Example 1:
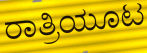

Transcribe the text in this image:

ರಾತ್ರಿಯೂಟ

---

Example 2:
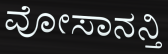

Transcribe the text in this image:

ವೋಸಾನನ್ತಿ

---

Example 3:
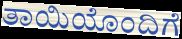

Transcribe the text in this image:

ತಾಯಿಯೊಂದಿಗೆ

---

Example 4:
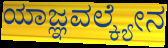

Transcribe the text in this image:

ಯಾಜ್ಞವಲ್ಕ್ಯೇನ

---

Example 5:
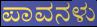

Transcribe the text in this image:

ಪಾವನಳು